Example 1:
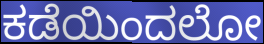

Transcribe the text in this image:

ಕಡೆಯಿಂದಲೋ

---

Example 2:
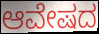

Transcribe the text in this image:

ಆವೇಷದ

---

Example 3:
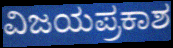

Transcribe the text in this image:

ವಿಜಯಪ್ರಕಾಶ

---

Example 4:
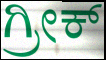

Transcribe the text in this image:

ಗ್ರೀಕ್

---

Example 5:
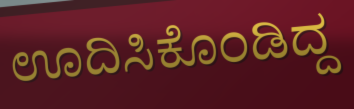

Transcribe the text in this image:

ಊದಿಸಿಕೊಂಡಿದ್ದ